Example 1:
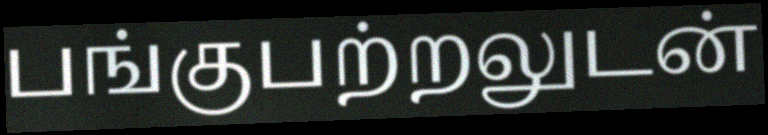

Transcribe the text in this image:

பங்குபற்றலுடன்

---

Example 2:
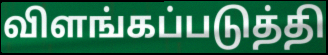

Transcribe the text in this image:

விளங்கப்படுத்தி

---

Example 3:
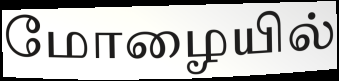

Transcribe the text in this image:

மோழையில்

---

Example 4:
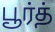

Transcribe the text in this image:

பூர்த்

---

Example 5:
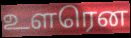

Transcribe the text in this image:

உளரென